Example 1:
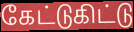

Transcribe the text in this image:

கேட்டுகிட்டு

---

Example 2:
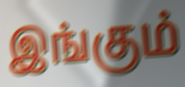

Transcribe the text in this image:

இங்கும்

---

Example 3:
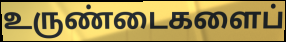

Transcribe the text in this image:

உருண்டைகளைப்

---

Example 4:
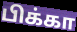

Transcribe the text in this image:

பிக்கா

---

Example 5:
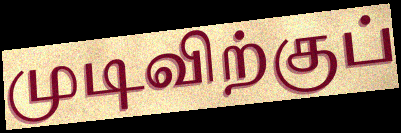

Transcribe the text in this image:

முடிவிற்குப்